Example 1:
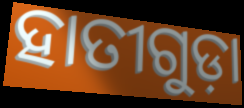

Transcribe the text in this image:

ହାତୀଗୁଡ଼ା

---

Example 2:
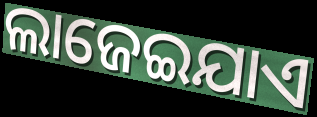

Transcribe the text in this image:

ଲାଜେଇଯାଏ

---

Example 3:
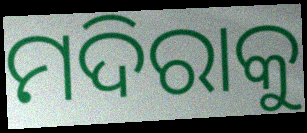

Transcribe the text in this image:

ମଦିରାକୁ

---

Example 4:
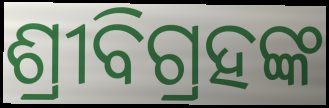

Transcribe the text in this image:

ଶ୍ରୀବିଗ୍ରହଙ୍କ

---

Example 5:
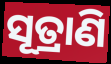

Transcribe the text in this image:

ସୂତ୍ରାଣି